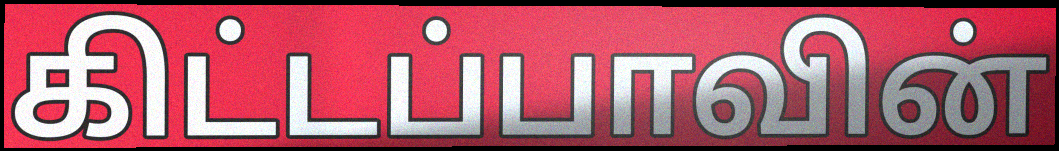
கிட்டப்பாவின்